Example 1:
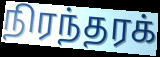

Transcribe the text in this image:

நிரந்தரக்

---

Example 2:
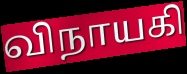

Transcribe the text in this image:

விநாயகி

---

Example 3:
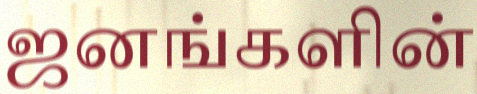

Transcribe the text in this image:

ஜனங்களின்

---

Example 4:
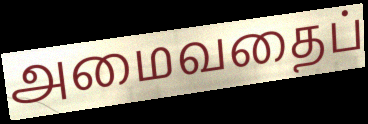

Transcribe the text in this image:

அமைவதைப்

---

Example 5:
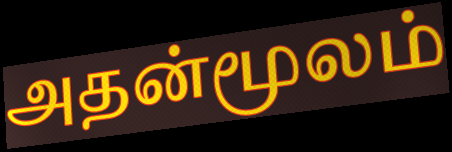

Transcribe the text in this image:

அதன்மூலம்